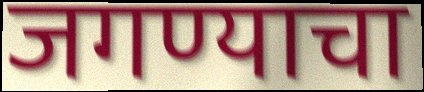
जगण्याचा